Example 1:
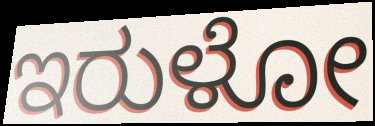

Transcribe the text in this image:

ಇರುಳೋ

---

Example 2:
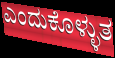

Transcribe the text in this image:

ಎಂದುಕೊಳ್ಳುತ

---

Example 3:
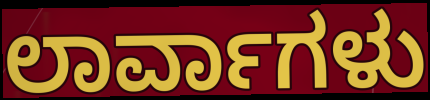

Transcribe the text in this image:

ಲಾರ್ವಾಗಳು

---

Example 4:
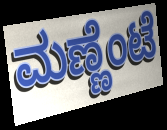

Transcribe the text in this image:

ಮಣ್ಣೆಂಟೆ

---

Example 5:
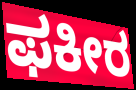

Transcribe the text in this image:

ಫಕೀರ